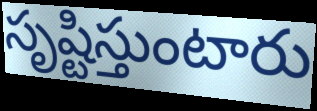
సృష్టిస్తుంటారు